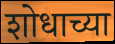
शोधाच्या